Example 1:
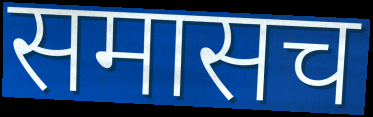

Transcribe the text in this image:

समासच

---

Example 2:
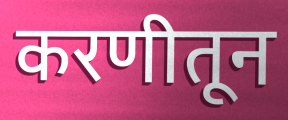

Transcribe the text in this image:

करणीतून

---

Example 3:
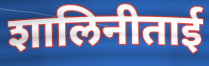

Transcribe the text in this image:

शालिनीताई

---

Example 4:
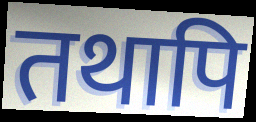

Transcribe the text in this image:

तथापि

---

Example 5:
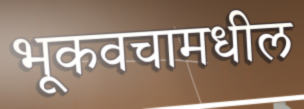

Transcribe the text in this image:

भूकवचामधील